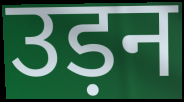
उड़न